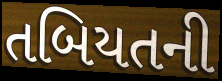
તબિયતની